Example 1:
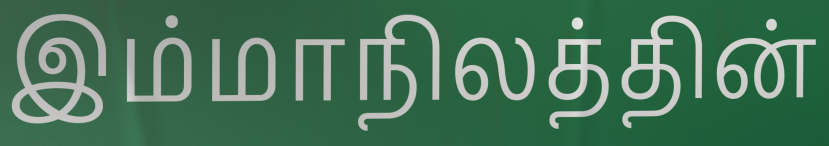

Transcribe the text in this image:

இம்மாநிலத்தின்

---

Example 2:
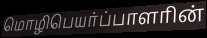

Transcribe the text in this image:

மொழிபெயர்ப்பாளரின்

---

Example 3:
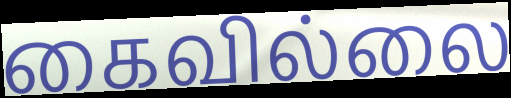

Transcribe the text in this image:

கைவில்லை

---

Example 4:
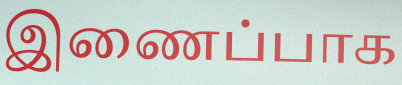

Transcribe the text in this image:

இணைப்பாக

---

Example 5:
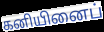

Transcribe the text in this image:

கனியினைப்